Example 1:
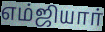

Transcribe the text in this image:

எம்ஜியார்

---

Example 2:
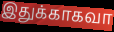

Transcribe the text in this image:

இதுக்காகவா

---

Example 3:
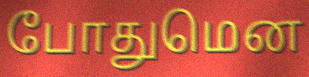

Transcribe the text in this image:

போதுமென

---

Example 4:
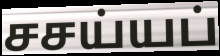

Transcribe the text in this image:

சசய்யப்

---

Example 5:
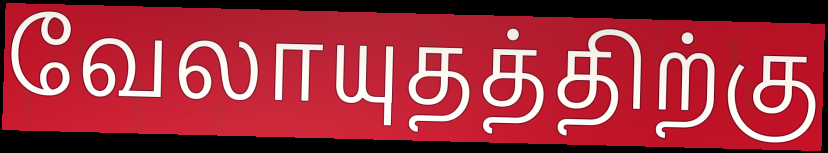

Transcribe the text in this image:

வேலாயுதத்திற்கு